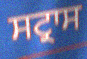
ਸਟ੍ਰਾਸ